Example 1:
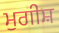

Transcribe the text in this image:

ਮੁਗੀਸ਼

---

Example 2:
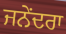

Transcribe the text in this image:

ਜਨੇਂਦਰਾ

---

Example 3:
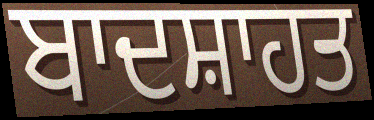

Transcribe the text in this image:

ਬਾਦਸ਼ਾਹਤ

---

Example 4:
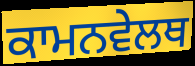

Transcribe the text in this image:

ਕਾਮਨਵੇਲਥ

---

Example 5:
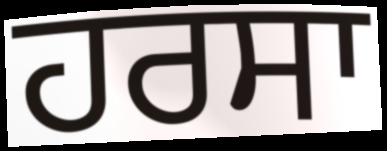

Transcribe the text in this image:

ਹਰਸਾ